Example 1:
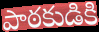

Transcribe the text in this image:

పాఠకుడికి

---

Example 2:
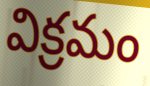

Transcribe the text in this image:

విక్రమం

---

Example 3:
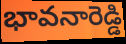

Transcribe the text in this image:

భావనారెడ్డి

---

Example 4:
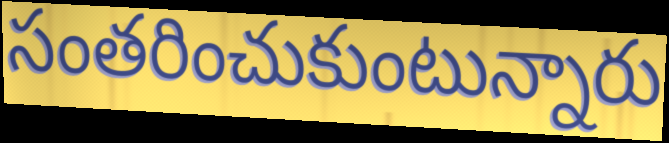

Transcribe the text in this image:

సంతరించుకుంటున్నారు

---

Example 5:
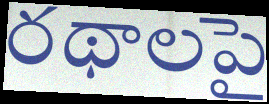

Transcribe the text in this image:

రథాలపై